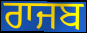
ਰਾਜਬ